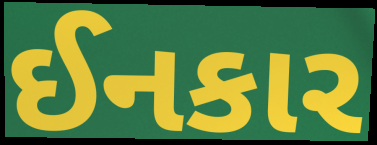
ઈનકાર